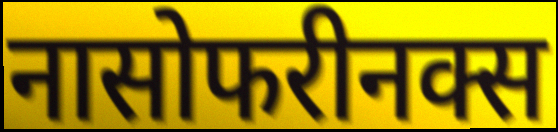
नासोफरीनक्स